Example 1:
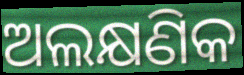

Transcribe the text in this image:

ଅଲକ୍ଷଣିକ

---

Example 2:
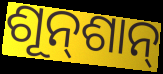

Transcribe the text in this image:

ଶୂନ୍‌ଶାନ୍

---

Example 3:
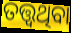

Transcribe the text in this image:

ତତ୍ତ୍ୱଥିବା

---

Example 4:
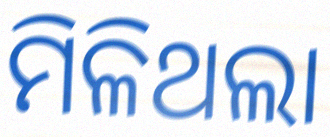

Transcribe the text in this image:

ମିଳିଥଲା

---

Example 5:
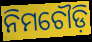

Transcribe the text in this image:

ନିମଚୌଡ଼ି